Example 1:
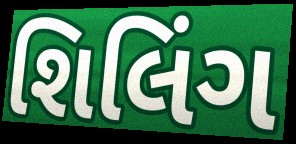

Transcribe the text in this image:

શિલિંગ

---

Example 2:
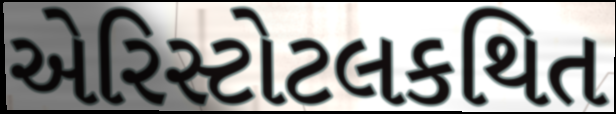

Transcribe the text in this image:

એરિસ્ટોટલકથિત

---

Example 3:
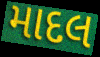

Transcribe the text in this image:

માદલ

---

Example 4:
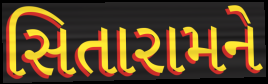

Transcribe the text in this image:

સિતારામને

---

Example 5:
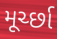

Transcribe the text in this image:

મૂર્ચ્છા